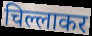
चिल्लाकर